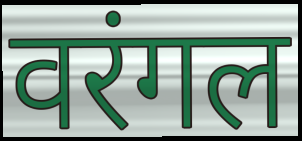
वरंगल